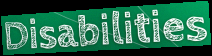
Disabilities